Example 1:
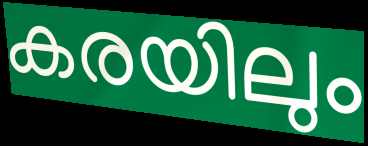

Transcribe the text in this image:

കരയിലും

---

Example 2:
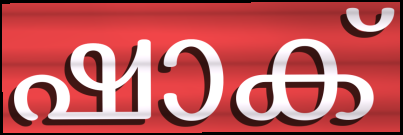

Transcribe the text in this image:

ഷാക്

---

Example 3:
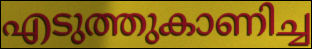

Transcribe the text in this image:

എടുത്തുകാണിച്ച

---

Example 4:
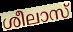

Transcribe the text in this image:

ശീലാസ്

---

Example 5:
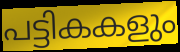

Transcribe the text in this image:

പട്ടികകളും